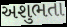
અશુભતા